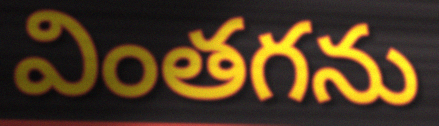
వింతగను